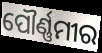
ପୌର୍ଣ୍ଣମୀର